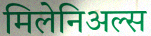
मिलेनिअल्स